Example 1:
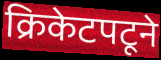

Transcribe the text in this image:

क्रिकेटपटूने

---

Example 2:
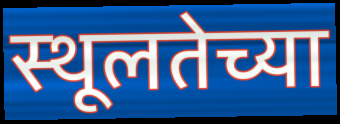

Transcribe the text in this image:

स्थूलतेच्या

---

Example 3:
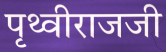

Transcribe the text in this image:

पृथ्वीराजजी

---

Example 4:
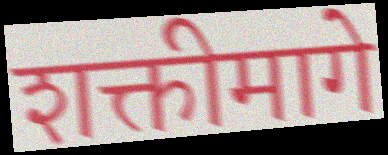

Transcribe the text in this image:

शक्तीमागे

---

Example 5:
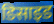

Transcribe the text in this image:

डिसाइड